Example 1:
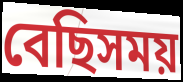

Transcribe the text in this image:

বেছিসময়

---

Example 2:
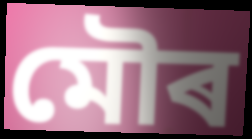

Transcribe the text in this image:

মৌৰ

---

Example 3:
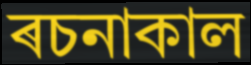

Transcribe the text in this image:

ৰচনাকাল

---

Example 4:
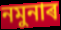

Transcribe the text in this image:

নমুনাৰ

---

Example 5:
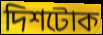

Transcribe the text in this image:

দিশটোক